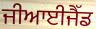
ਜੀਆਈਜੈੱਡ